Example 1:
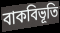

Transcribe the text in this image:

বাকবিভূতি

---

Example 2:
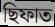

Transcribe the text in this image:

ছিফাত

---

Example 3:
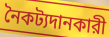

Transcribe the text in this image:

নৈকট্যদানকারী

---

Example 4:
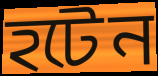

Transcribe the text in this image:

হটেন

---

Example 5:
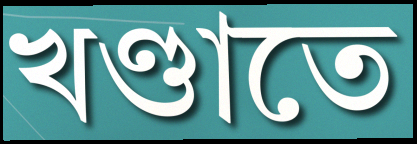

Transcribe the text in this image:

খণ্ডাতে